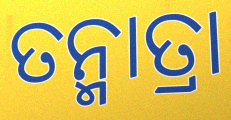
ତନ୍ମାତ୍ରା